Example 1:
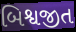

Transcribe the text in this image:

બિશ્વજીત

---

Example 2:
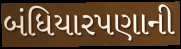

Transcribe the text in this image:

બંધિયારપણાની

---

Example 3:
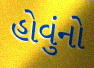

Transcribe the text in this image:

હોવુંનો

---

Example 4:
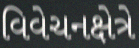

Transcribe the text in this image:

વિવેચનક્ષેત્રે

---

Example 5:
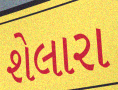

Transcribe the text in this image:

શેલારા